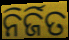
ନିର୍ଜିତ